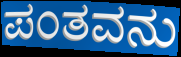
ಪಂತವನು